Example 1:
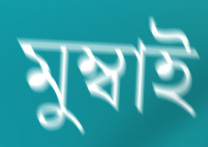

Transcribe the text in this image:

মুম্বাই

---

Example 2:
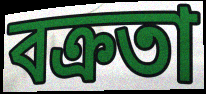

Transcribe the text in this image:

বক্ৰতা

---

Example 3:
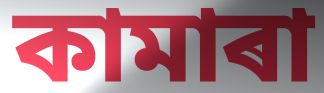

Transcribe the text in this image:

কামাৰা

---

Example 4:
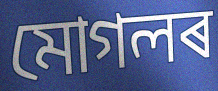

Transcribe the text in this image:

মোগলৰ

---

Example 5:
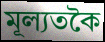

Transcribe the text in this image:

মূল্যতকৈ